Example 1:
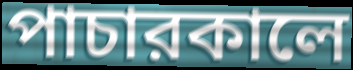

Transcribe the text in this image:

পাচারকালে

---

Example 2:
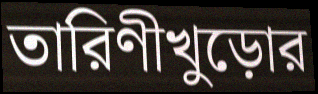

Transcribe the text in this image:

তারিণীখুড়োর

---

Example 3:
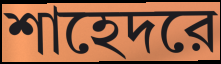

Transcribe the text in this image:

শাহেদরে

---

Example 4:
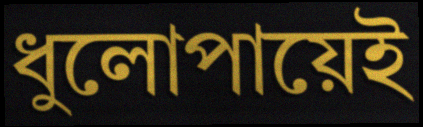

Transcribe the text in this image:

ধুলোপায়েই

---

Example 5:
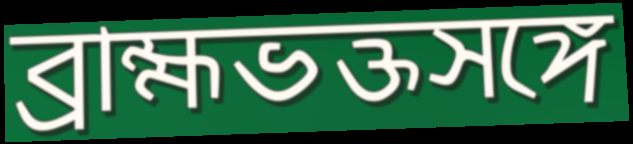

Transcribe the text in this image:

ব্রাহ্মভক্তসঙ্গে